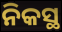
ନିକସ୍ଥ